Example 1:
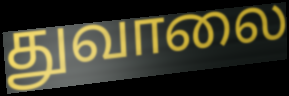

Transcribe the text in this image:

துவாலை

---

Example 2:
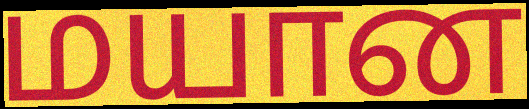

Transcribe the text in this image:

மயான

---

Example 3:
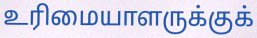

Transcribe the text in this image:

உரிமையாளருக்குக்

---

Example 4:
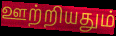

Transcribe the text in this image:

ஊற்றியதும்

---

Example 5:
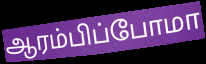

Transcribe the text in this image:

ஆரம்பிப்போமா